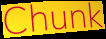
Chunk